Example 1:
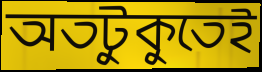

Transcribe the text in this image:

অতটুকুতেই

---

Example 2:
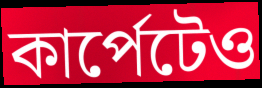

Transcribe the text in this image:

কার্পেটেও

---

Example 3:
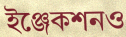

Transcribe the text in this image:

ইঞ্জেকশনও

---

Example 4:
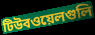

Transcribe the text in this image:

টিউবওয়েলগুলি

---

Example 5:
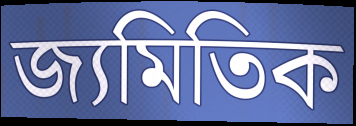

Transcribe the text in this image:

জ্যমিতিক